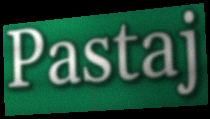
Pastaj